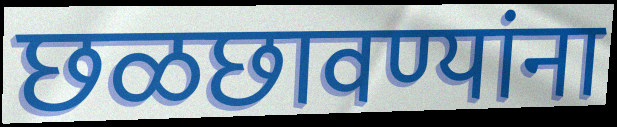
छळछावण्यांना